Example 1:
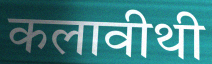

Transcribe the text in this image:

कलावीथी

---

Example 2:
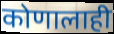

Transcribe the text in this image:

कोणालाही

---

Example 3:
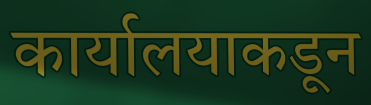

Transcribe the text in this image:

कार्यालयाकडून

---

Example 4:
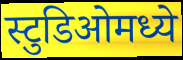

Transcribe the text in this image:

स्टुडिओमध्ये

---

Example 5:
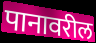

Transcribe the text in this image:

पानावरील